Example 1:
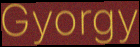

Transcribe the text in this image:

Gyorgy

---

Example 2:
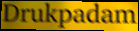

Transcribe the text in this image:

Drukpadam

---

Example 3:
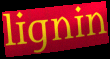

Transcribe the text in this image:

lignin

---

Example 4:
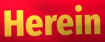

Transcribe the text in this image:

Herein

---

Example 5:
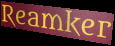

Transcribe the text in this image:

Reamker